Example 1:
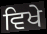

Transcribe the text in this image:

ਵਿਖੇ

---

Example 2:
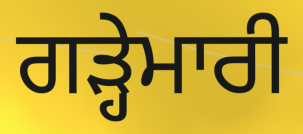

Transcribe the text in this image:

ਗੜ੍ਹੇਮਾਰੀ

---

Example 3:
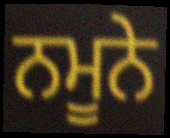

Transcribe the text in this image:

ਨਮੂਨੇ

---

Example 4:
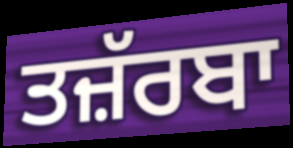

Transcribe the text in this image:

ਤਜ਼ੱਰਬਾ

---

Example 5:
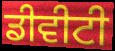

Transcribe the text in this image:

ਡੀਵੀਟੀ